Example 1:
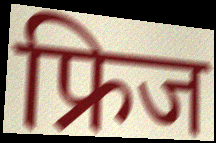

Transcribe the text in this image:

फ्रिज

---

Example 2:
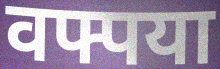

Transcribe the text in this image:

वफ्पया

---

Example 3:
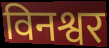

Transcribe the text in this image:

विनश्वर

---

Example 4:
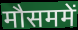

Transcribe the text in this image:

मौसममें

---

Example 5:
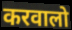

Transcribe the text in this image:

करवालो